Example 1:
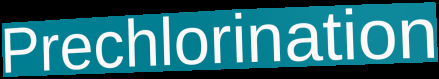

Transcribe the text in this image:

Prechlorination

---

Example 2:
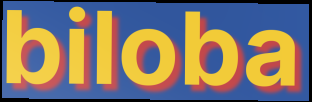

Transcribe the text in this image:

biloba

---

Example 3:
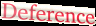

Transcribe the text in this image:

Deference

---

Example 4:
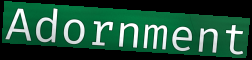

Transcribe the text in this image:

Adornment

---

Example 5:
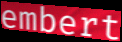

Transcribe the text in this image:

embert